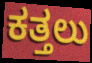
ಕತ್ತಲು